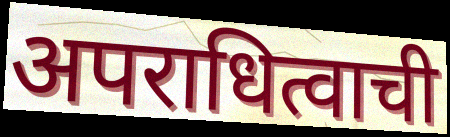
अपराधित्वाची